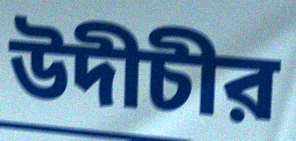
উদীচীর